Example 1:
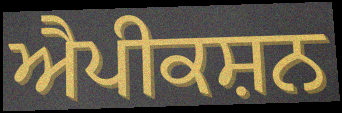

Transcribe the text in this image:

ਐਪੀਕਸ਼ਨ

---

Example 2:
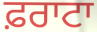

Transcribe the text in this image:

ਫ਼ਰਾਟਾ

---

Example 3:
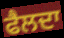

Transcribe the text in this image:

ਫੈਲਦਾ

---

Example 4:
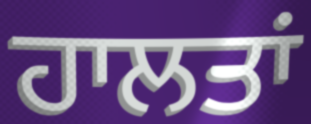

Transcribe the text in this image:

ਹਾਲਤਾਂ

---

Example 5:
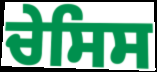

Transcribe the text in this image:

ਚੇਸਿਸ